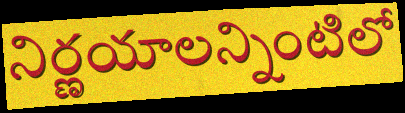
నిర్ణయాలన్నింటిలో